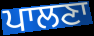
ਪਾਲਣਾ